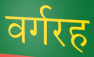
वर्गरह